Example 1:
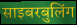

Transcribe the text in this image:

साइबरबुलिंग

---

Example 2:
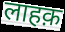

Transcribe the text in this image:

लाहक़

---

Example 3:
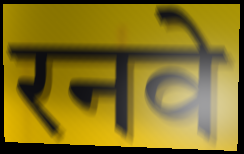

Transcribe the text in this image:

रनवे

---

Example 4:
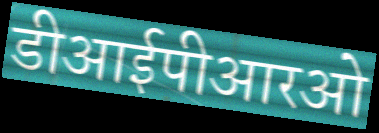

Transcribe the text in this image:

डीआईपीआरओ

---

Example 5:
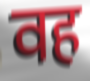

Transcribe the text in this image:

वह